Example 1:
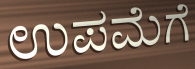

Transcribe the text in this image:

ಉಪಮೆಗೆ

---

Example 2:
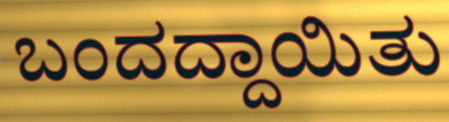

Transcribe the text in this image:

ಬಂದದ್ದಾಯಿತು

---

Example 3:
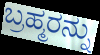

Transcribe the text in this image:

ಬ್ರಹ್ಮರನ್ನು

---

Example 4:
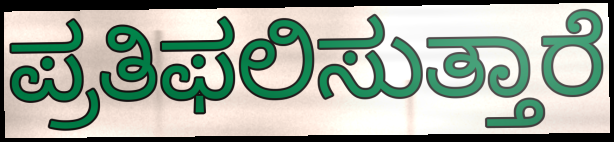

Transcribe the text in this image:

ಪ್ರತಿಫಲಿಸುತ್ತಾರೆ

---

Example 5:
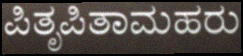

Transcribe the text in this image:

ಪಿತೃಪಿತಾಮಹರು